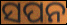
ସପନ